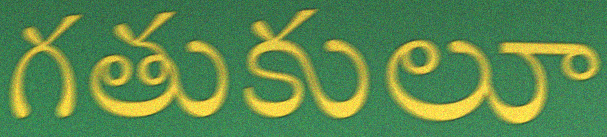
గతుకులూ